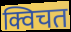
क्विचत